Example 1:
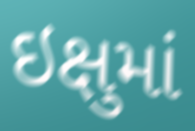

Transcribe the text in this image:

ઇક્ષુમાં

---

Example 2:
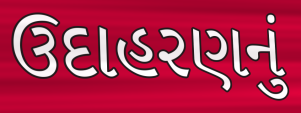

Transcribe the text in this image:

ઉદાહરણનું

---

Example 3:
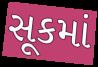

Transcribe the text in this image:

સૂકમાં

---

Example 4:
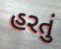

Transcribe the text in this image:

હરતું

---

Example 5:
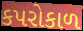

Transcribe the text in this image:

કપરોકાળ